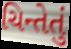
ચિન્તેતું